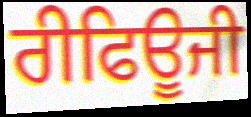
ਰੀਫਿਊਜੀ